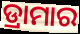
ଡ୍ରାମାର